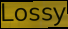
Lossy